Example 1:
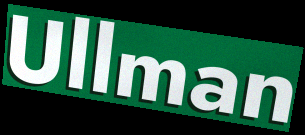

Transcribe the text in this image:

Ullman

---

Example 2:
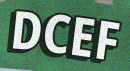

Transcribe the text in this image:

DCEF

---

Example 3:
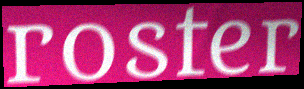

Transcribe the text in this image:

roster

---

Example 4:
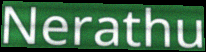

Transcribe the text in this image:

Nerathu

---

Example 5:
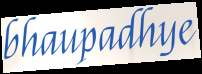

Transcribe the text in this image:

bhaupadhye